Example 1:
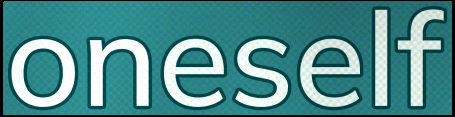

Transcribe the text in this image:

oneself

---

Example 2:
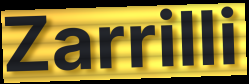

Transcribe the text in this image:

Zarrilli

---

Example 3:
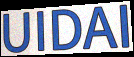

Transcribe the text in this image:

UIDAI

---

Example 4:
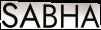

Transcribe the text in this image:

SABHA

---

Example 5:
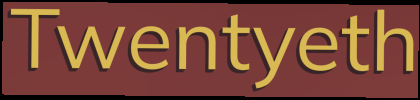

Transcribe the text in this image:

Twentyeth